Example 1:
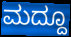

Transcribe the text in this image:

ಮದ್ದೂ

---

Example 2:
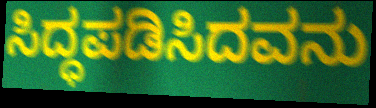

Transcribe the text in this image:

ಸಿದ್ಧಪಡಿಸಿದವನು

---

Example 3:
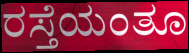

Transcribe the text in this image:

ರಸ್ತೆಯಂತೂ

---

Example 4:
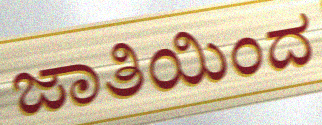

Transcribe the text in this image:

ಜಾತಿಯಿಂದ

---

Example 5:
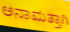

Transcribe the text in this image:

ಅನಾಮತ್ತಾಗಿ